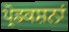
ਪ੍ਰੋਡਕਸ਼ਨਾਂ